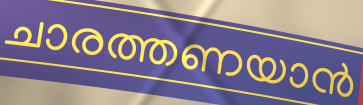
ചാരത്തണയാൻ